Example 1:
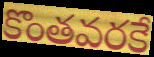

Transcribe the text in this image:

కొంతవరకే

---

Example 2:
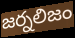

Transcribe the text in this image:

జర్నలిజం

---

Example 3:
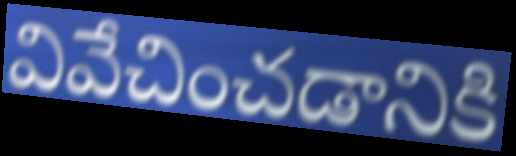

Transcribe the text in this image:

వివేచించడానికి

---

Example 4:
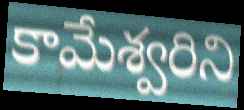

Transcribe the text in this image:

కామేశ్వరిని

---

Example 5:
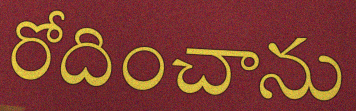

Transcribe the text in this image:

రోదించాను